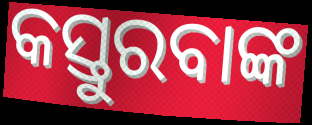
କସ୍ତୁରବାଙ୍କ